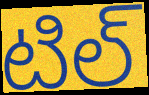
టిల్